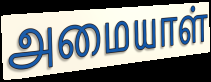
அமையாள்